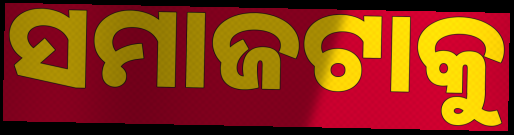
ସମାଜଟାକୁ